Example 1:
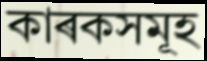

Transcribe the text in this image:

কাৰকসমূহ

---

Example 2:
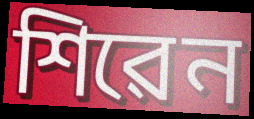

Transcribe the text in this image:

শিৱেন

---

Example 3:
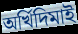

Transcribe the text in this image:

অৰ্খিদিমাই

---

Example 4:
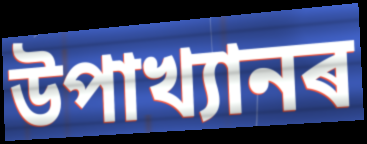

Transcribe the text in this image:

উপাখ্যানৰ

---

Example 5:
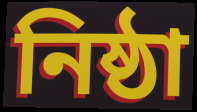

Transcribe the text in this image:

নিষ্ঠা